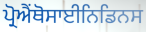
ਪ੍ਰੋਐਂਥੋਸਾਈਨਿਡਿਨਸ